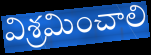
విశ్రమించాలి